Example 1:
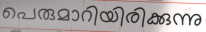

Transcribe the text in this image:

പെരുമാറിയിരിക്കുന്നു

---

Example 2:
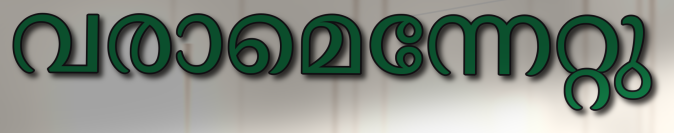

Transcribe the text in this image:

വരാമെന്നേറ്റു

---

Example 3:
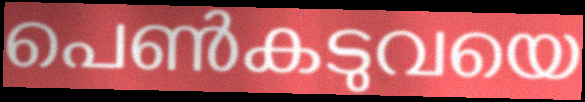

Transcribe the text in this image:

പെൺകടുവയെ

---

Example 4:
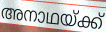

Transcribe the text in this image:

അനാഥയ്ക്ക്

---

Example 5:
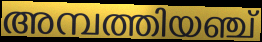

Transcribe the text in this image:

അമ്പത്തിയഞ്ച്